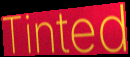
Tinted